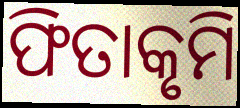
ଫିତାକୃମି